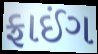
ફ્રાઈંગ